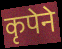
कृपेने